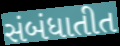
સંબંધાતીત